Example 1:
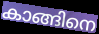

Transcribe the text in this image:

കാങ്ങിനെ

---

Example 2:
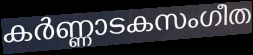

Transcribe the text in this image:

കർണ്ണാടകസംഗീത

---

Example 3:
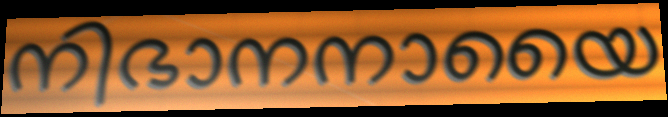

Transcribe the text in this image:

നിഭാനനായൈ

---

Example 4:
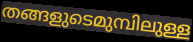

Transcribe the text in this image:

തങ്ങളുടെമുമ്പിലുള്ള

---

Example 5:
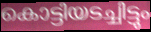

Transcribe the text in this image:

കൊട്ടിയടച്ചിട്ടും